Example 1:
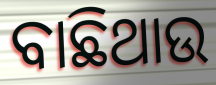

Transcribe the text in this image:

ବାଛିଥାଉ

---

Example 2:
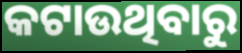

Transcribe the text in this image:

କଟାଉଥିବାରୁ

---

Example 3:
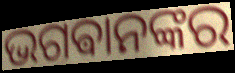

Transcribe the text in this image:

ଭଗଵାନଙ୍କର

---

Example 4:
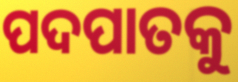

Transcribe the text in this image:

ପଦପାତକୁ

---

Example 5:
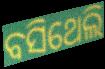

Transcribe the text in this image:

ବସିଥେଲି